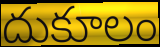
దుకూలం